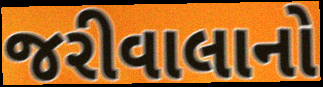
જરીવાલાનો